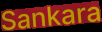
Sankara